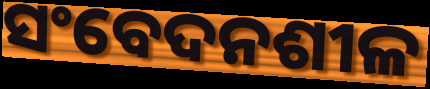
ସଂବେଦନଶୀଳ